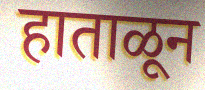
हाताळून